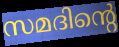
സമദിന്റെ